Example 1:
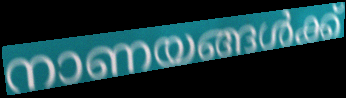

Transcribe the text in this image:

നാണയങ്ങൾക്ക്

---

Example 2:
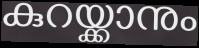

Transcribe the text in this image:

കുറയ്ക്കാനും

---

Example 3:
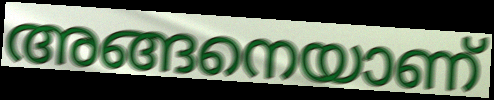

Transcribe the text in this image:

അങ്ങനെയാണ്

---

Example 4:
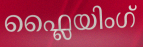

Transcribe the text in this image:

ഫ്ലൈയിംഗ്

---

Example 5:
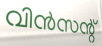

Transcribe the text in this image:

വിൻസന്റ്